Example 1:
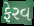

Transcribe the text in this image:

ફેરવ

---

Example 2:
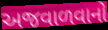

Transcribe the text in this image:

અજવાળવાનો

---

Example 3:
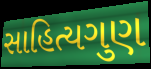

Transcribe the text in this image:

સાહિત્યગુણ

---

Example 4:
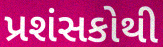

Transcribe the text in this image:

પ્રશંસકોથી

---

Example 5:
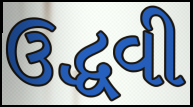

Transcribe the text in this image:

ઉદ્ધવી